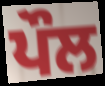
ਪੌਲ